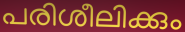
പരിശീലിക്കും